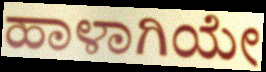
ಹಾಳಾಗಿಯೇ